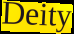
Deity